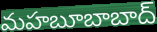
మహబూబాబాద్